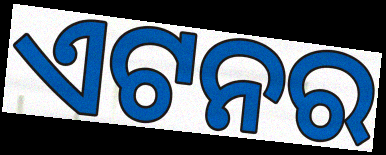
ଏଟନର